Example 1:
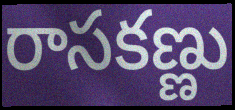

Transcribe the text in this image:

రాసకణ్ణు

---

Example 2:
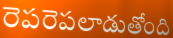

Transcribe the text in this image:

రెపరెపలాడుతోంది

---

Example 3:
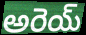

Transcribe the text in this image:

అరెయ్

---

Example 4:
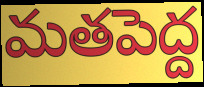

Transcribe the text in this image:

మతపెద్ద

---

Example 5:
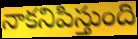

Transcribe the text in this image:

నాకనిపిస్తుంది